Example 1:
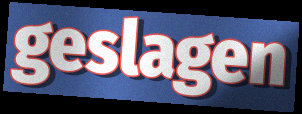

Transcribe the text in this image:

geslagen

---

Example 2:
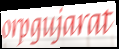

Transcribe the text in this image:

orpgujarat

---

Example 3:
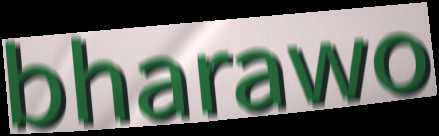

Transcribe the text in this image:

bharawo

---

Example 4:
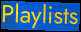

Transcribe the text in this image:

Playlists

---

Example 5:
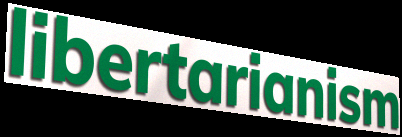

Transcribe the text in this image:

libertarianism